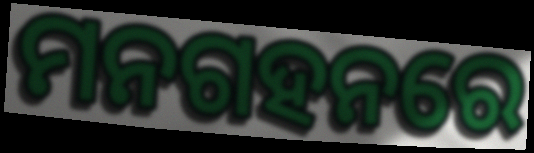
ମନଗହନରେ